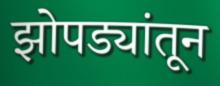
झोपड्यांतून